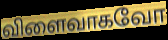
விளைவாகவோ